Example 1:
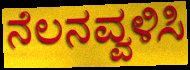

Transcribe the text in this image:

ನೆಲನವ್ವಳಿಸಿ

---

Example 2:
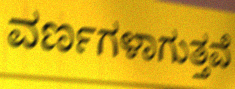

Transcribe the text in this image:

ವರ್ಣಗಳಾಗುತ್ತವೆ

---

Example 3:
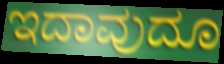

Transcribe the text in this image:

ಇದಾವುದೂ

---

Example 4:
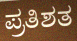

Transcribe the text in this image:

ಪ್ರತಿಶತ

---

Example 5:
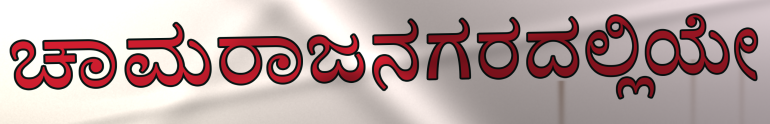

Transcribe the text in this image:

ಚಾಮರಾಜನಗರದಲ್ಲಿಯೇ